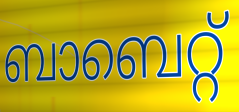
ബാബെറ്റ്